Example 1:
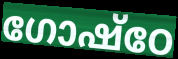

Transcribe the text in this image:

ഗോഷ്ഠേ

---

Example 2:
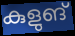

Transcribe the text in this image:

കുളുങ്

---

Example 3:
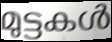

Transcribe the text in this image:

മുട്ടകൾ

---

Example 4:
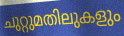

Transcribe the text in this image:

ചുറ്റുമതിലുകളും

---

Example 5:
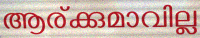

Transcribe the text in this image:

ആര്ക്കുമാവില്ല